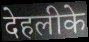
देहलीके